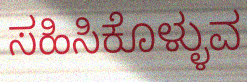
ಸಹಿಸಿಕೊಳ್ಳುವ